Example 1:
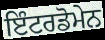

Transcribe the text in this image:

ਇੰਟਰਡੋਮੇਨ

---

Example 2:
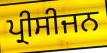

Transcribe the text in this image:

ਪ੍ਰੀਸੀਜਨ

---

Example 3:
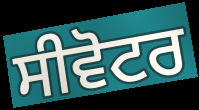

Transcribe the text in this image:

ਸੀਵੋਟਰ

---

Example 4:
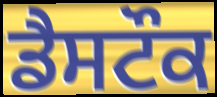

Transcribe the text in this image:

ਡੈਸਟੌਕ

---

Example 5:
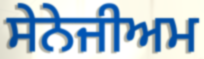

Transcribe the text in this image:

ਸੇਨੇਜੀਅਮ